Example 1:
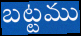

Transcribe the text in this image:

బట్టము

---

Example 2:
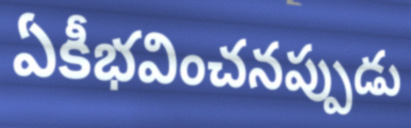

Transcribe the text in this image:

ఏకీభవించనప్పుడు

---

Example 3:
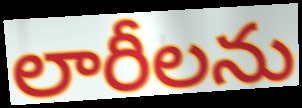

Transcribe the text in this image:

లారీలను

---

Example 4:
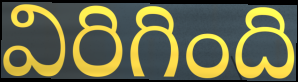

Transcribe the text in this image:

విరిగింది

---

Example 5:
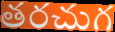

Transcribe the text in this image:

తరచుగ